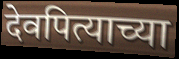
देवपित्याच्या